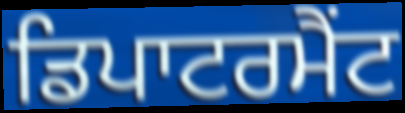
ਡਿਪਾਟਰਮੈਂਟ